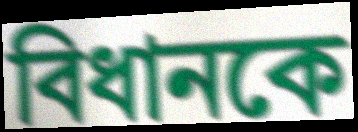
বিধানকে